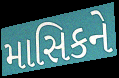
માસિકને